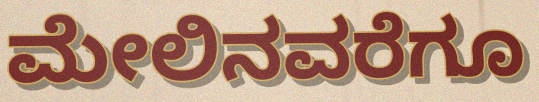
ಮೇಲಿನವರೆಗೂ